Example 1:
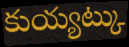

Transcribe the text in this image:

కుయ్యట్కు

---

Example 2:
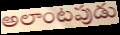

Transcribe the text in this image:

అలాంటపుడు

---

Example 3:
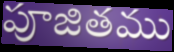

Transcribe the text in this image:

పూజితము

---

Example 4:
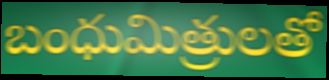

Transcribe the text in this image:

బంధుమిత్రులతో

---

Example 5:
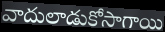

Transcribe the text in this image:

వాదులాడుకోసాగాయి